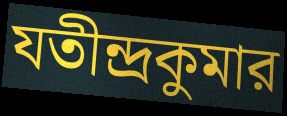
যতীন্দ্রকুমার